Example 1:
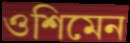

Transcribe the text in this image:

ওশিমেন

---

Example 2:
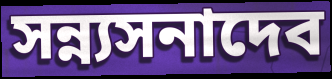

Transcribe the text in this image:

সন্ন্যসনাদেব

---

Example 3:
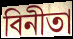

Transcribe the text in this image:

বিনীতা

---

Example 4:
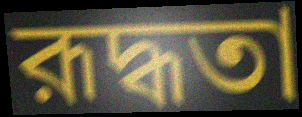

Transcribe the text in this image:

রূদ্ধতা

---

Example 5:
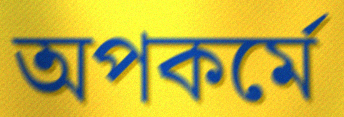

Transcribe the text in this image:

অপকর্মে